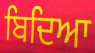
ਬਿਦਿਆ